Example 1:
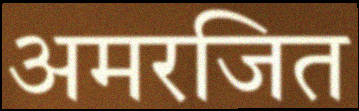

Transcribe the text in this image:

अमरजित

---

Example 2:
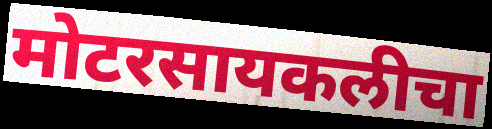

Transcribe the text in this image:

मोटरसायकलीचा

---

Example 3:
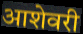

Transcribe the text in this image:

आशेवरी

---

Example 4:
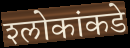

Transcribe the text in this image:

श्लोकांकडे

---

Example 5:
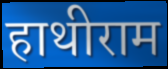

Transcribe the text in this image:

हाथीराम